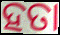
ହତା